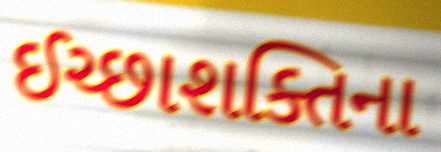
ઈચ્છાશક્તિના